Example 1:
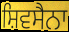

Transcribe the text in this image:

ਸ਼ਿਵਸੈਨਾ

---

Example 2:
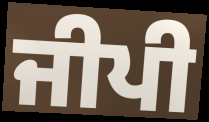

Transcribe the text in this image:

ਜੀਪੀ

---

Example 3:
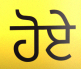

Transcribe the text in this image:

ਹੋਏੇ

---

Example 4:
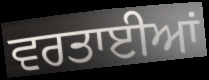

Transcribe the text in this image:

ਵਰਤਾਈਆਂ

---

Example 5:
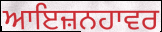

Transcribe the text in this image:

ਆਇਜ਼ਨਹਾਵਰ